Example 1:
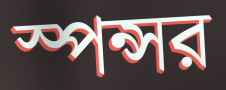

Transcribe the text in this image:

স্পন্সর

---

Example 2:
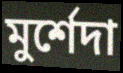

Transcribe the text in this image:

মুর্শেদা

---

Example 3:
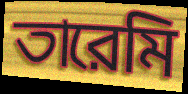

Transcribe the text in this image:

তারেমি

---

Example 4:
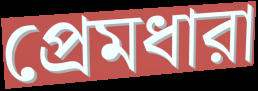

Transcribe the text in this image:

প্রেমধারা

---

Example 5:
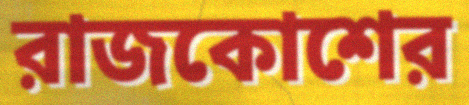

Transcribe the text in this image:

রাজকোশের